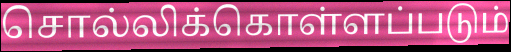
சொல்லிக்கொள்ளப்படும்